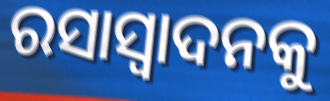
ରସାସ୍ୱାଦନକୁ